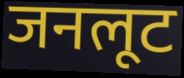
जनलूट